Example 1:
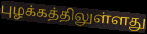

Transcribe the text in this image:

புழக்கத்திலுள்ளது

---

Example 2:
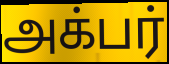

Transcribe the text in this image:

அக்பர்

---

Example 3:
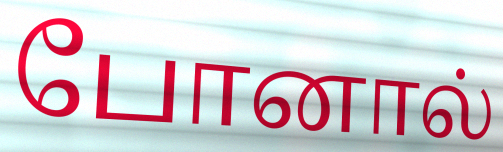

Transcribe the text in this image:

போனால்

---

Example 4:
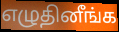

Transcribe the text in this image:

எழுதினீங்க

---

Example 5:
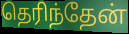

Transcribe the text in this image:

தெரிந்தேன்